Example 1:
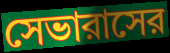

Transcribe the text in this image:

সেভারাসের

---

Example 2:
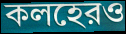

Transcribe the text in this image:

কলহেরও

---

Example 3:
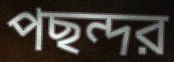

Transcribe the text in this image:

পছন্দর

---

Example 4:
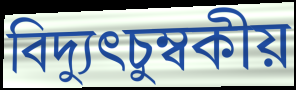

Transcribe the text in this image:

বিদ্যুৎচুম্বকীয়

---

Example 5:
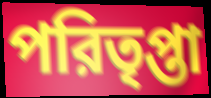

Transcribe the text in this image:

পরিতৃপ্তা